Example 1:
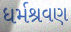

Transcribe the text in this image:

ધર્મશ્રવણ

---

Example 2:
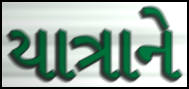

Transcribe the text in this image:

યાત્રાને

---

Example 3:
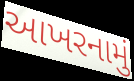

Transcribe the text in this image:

આખરનામું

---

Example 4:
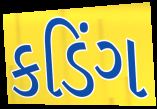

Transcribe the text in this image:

કડિંગ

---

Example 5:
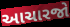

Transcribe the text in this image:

આચારજો